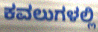
ಕವಲುಗಳಲ್ಲಿ